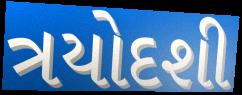
ત્રયોદશી